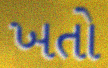
ખતો